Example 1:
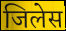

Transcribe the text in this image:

जिलेस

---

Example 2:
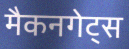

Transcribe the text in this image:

मैकनगेट्स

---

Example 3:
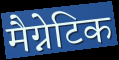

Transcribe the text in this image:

मैग्नेटिक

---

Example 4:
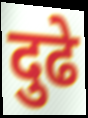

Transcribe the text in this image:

दुढे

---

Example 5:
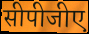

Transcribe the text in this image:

सीपीजीए